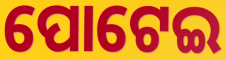
ପୋଟେଇ